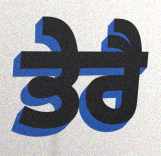
ਤੇਰੈ